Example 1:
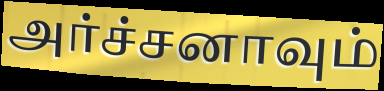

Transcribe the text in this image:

அர்ச்சனாவும்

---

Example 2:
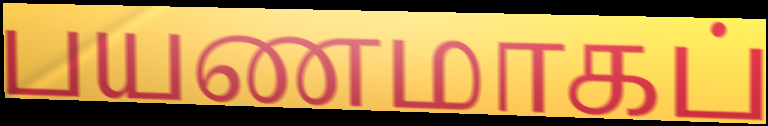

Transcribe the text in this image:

பயணமாகப்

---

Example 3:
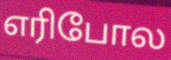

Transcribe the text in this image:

எரிபோல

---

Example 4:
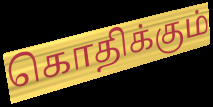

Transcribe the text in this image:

கொதிக்கும்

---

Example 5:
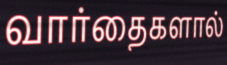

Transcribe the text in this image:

வார்தைகளால்